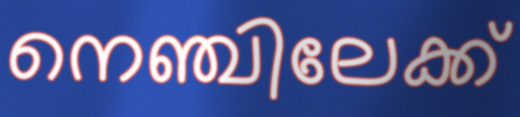
നെഞ്ചിലേക്ക്